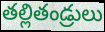
తల్లితండ్రులు